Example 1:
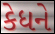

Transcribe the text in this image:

કેધને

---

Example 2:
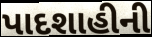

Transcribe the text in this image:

પાદશાહીની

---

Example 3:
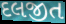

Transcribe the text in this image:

દલજીત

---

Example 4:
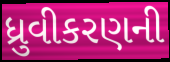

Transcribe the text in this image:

ધ્રુવીકરણની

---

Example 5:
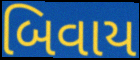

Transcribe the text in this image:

બિવાય